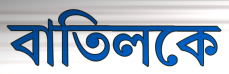
বাতিলকে